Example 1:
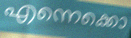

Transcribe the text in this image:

എന്നെക്കൊ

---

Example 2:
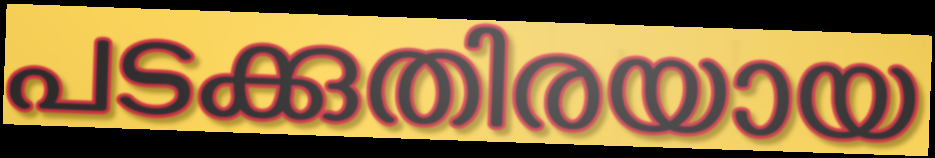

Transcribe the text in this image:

പടക്കുതിരയായ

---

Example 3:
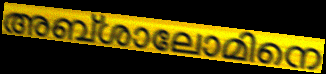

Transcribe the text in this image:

അബ്ശാലോമിനെ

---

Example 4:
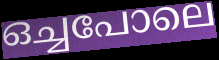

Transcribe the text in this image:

ഒച്ചപോലെ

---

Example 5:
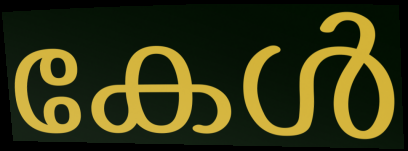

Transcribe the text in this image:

കേൾ